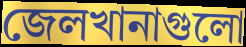
জেলখানাগুলো